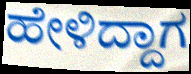
ಹೇಳಿದ್ದಾಗ